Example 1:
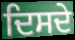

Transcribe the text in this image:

ਦਿਸਦੇ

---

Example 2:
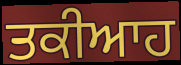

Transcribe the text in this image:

ਤਕੀਆਹ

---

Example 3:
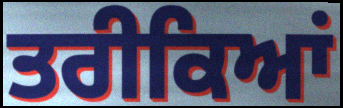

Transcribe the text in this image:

ਤਰੀਕਿਆਂ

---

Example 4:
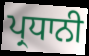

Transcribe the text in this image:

ਪ੍ਰਧਾਨੀ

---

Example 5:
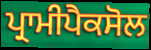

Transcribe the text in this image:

ਪ੍ਰਾਮੀਪੈਕਸੋਲ